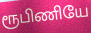
ரூபிணியே